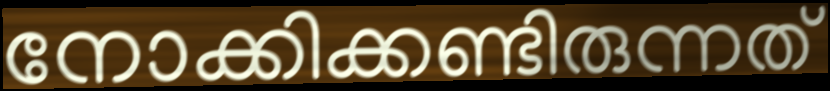
നോക്കിക്കണ്ടിരുന്നത്